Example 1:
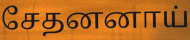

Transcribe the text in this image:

சேதனனாய்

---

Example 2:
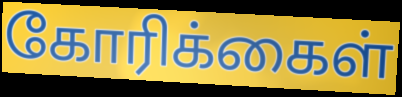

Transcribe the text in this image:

கோரிக்கைள்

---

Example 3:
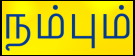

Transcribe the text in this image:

நம்பும்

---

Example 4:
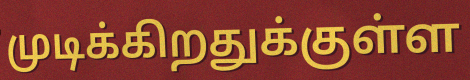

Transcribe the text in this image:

முடிக்கிறதுக்குள்ள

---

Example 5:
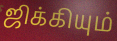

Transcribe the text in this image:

ஜிக்கியும்